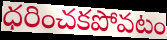
ధరించకపోవటం